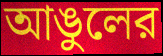
আঙুলের